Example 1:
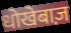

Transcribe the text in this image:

धोखेबाज़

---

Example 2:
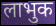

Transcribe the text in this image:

लाभुक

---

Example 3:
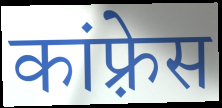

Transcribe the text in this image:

कांफ़्रेस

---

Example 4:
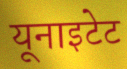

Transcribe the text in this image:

यूनाइटेट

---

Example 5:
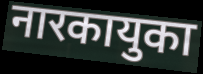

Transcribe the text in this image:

नारकायुका